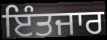
ਇੰਤਜਾਰ